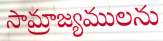
సామ్రాజ్యములను